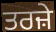
ਤਰਜ਼ੇ